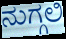
ನುಗ್ಗಲಿ